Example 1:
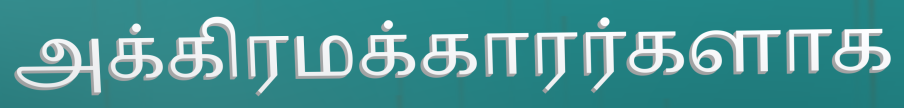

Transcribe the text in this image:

அக்கிரமக்காரர்களாக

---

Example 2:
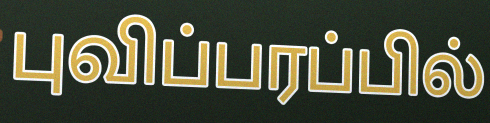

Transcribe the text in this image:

புவிப்பரப்பில்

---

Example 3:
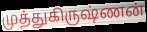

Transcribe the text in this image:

முத்துகிருஷ்ணன்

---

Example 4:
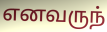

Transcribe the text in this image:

எனவருந்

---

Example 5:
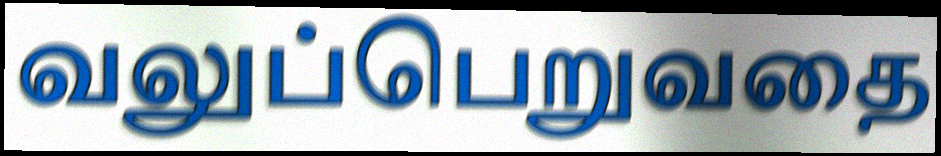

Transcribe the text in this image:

வலுப்பெறுவதை